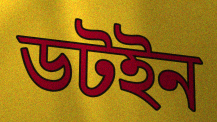
ডটইন